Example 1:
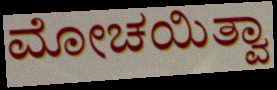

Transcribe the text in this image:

ಮೋಚಯಿತ್ವಾ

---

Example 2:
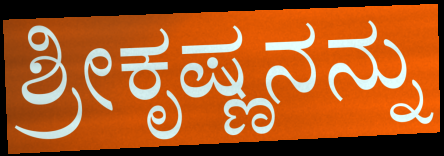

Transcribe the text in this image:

ಶ್ರೀಕೃಷ್ಣನನ್ನು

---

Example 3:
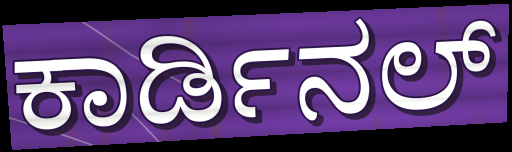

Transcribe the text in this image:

ಕಾರ್ಡಿನಲ್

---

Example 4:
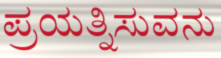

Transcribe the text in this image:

ಪ್ರಯತ್ನಿಸುವನು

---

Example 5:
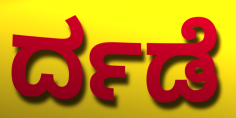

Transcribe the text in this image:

ರ್ದಡೆ